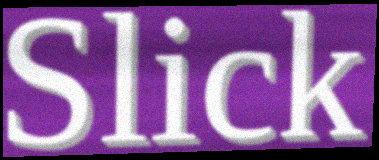
Slick